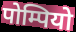
पोम्पियो